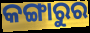
କଙ୍ଗାରୁର